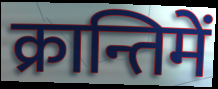
क्रान्तिमें